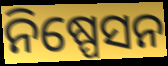
ନିଷ୍ପେସନ